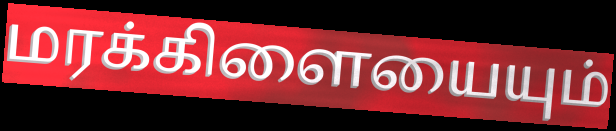
மரக்கிளையையும்